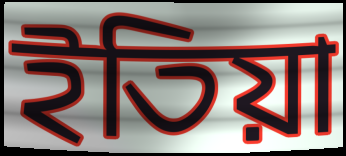
ইতিয়া